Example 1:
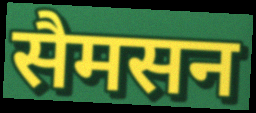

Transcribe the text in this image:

सैमसन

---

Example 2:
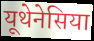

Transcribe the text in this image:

यूथेनेसिया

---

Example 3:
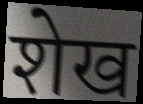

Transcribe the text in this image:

शेख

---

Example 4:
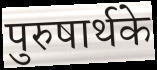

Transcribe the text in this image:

पुरुषार्थके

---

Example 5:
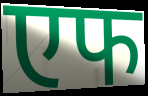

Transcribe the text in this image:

एफ